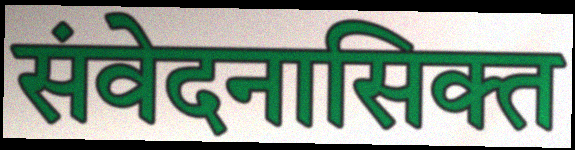
संवेदनासिक्त